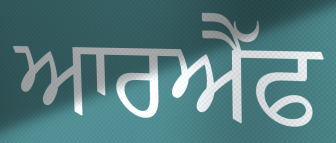
ਆਰਐੱਫ